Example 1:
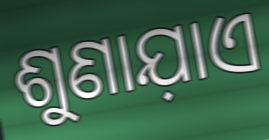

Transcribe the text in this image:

ଶୁଣାଯ଼ାଏ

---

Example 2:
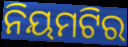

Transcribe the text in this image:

ନିୟମଟିର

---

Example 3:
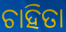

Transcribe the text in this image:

ଚାହିତା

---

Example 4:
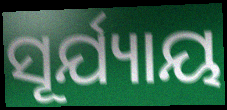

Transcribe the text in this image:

ସୂର୍ଯ୍ୟାୟ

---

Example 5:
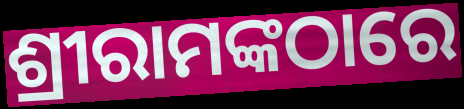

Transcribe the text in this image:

ଶ୍ରୀରାମଙ୍କଠାରେ